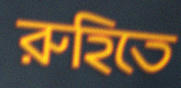
রুহিতে